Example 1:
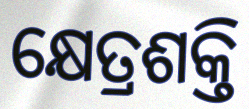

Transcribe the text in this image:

କ୍ଷେତ୍ରଶକ୍ତି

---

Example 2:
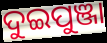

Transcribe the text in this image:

ଦୁଇପୁଞ୍ଜା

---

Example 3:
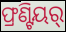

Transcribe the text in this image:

ଫ୍ରଣ୍ଟିୟର୍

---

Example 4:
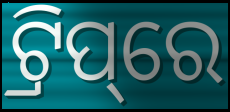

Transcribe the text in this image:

ଟ୍ରିପ୍‌ରେ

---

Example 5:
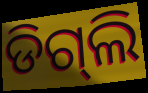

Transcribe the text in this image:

ଡିଗ୍‌ଲି